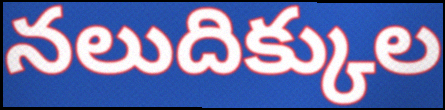
నలుదిక్కుల